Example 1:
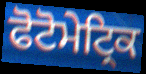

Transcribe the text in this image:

ਫੋਟੋਮੇਟ੍ਰਿਕ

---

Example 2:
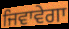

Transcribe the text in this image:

ਜਿਵਾਵੇਗਾ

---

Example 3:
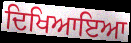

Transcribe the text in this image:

ਦਿਖਿਆਇਆ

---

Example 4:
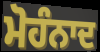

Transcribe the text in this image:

ਮੋਹੰਨਾਦ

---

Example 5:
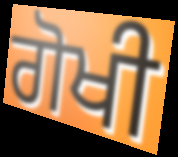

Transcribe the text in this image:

ਗੋਖੀ